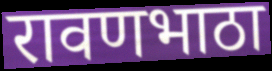
रावणभाठा